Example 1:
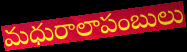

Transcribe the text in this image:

మధురాలాపంబులు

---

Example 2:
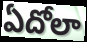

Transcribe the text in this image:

ఏదోలా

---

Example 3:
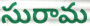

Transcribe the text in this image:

సురామ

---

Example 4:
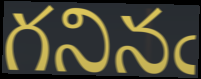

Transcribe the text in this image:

గనినఁ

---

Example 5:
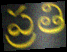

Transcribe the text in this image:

ప్రతి